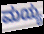
ಮಯ್ಯ